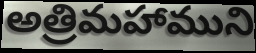
అత్రిమహాముని